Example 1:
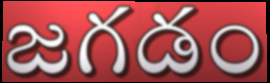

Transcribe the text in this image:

జగడం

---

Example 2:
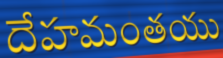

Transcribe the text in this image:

దేహమంతయు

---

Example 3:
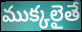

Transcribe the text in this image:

ముక్కలైతే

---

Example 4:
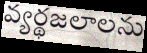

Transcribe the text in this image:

వ్యర్థజలాలను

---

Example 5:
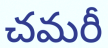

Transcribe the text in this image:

చమరీ